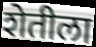
शेतीला